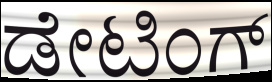
ಡೇಟಿಂಗ್